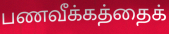
பணவீக்கத்தைக்